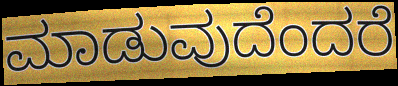
ಮಾಡುವುದೆಂದರೆ